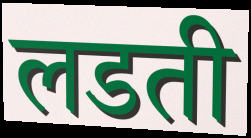
लडती